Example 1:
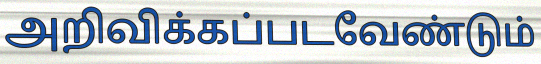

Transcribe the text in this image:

அறிவிக்கப்படவேண்டும்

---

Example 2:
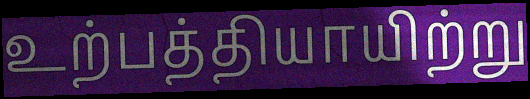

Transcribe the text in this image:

உற்பத்தியாயிற்று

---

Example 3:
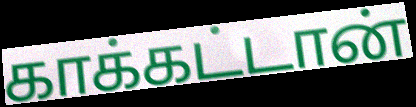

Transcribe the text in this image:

காக்கட்டான்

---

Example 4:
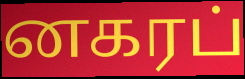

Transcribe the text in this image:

னகரப்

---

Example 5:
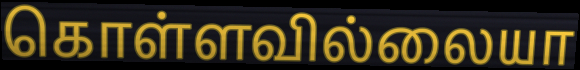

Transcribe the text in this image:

கொள்ளவில்லையா